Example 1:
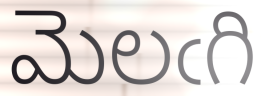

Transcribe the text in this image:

మెలఁగి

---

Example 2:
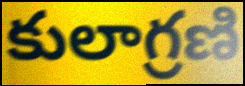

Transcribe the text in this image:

కులాగ్రణి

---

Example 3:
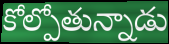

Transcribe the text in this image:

కోల్పోతున్నాడు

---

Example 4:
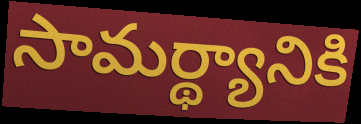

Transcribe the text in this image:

సామర్థ్యానికి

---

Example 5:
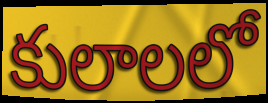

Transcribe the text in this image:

కులాలలో